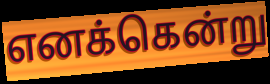
எனக்கென்று